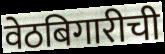
वेठबिगारीची